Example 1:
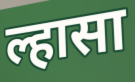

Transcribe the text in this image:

ल्हासा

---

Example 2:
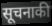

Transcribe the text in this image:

सूचनाकी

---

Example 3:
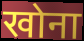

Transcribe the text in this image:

खोना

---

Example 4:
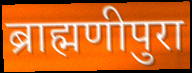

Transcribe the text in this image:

ब्राह्मणीपुरा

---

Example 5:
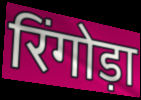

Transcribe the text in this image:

रिंगोड़ा